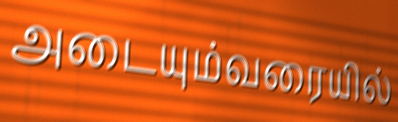
அடையும்வரையில்